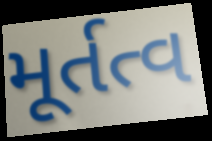
મૂર્તત્વ